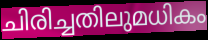
ചിരിച്ചതിലുമധികം